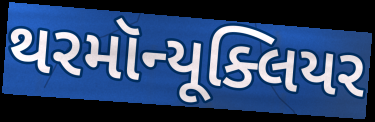
થરમૉન્યૂક્લિયર